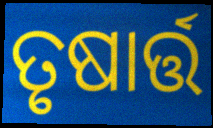
ତୃଷାର୍ତ୍ତ